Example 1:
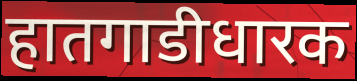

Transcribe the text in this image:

हातगाडीधारक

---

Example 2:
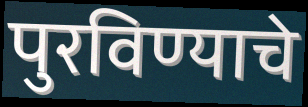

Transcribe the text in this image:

पुरविण्याचे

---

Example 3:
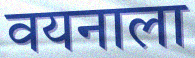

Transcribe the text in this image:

वयनाला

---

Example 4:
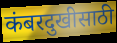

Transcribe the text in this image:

कंबरदुखीसाठी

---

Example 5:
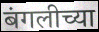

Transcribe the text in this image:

बंगलीच्या